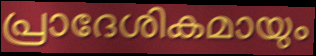
പ്രാദേശികമായും